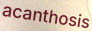
acanthosis